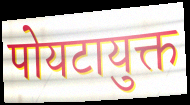
पोयटायुक्त